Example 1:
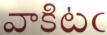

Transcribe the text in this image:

వాకిటఁ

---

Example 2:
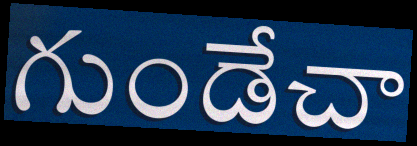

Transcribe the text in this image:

గుండేచా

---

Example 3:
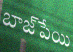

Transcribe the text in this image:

బాజ్‌పేయి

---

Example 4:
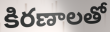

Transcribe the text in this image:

కిరణాలతో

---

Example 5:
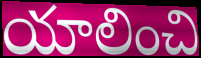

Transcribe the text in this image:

యాలించి